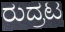
ರುದ್ರಟ